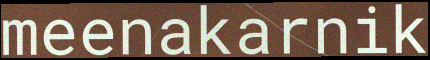
meenakarnik